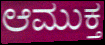
ಆಮುಕ್ತ